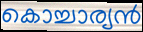
കൊച്ചാര്യൻ